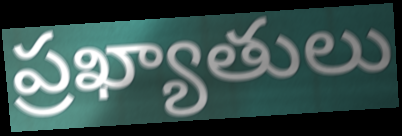
ప్రఖ్యాతులు